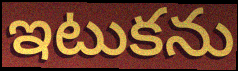
ఇటుకను